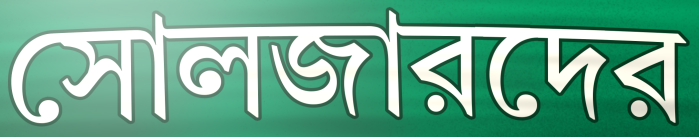
সোলজারদের